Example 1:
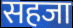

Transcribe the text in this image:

सहजा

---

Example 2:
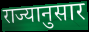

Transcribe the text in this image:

राज्यानुसार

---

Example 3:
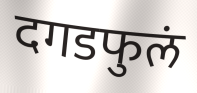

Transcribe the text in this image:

दगडफुलं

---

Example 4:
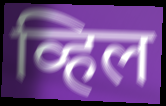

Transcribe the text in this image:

व्हिल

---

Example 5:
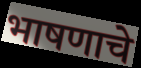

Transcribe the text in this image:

भाषणाचे